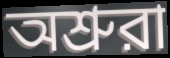
অশ্রুরা